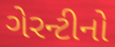
ગેરન્ટીનો